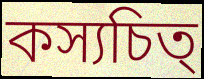
কস্যচিত্